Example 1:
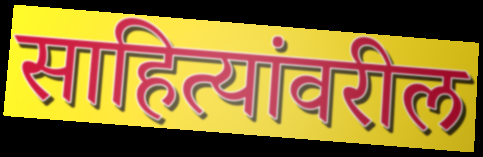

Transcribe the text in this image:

साहित्यांवरील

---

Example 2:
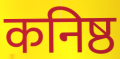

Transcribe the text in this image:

कनिष्ठ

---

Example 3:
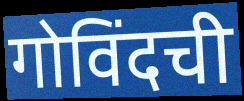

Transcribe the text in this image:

गोविंदची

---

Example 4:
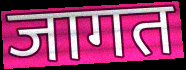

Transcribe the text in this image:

जागत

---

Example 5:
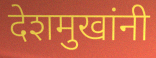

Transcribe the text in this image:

देशमुखांनी